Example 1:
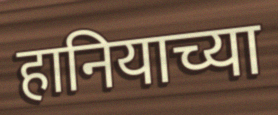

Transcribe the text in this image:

हानियाच्या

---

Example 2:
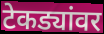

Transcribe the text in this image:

टेकड्यांवर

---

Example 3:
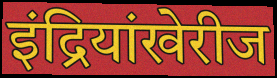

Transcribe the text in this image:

इंद्रियांखेरीज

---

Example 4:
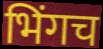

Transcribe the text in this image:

भिंगच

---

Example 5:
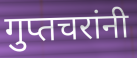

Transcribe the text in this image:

गुप्तचरांनी